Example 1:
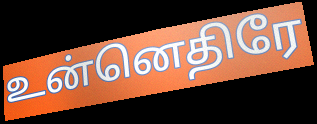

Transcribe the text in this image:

உன்னெதிரே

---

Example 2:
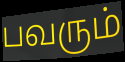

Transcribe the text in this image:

பவரும்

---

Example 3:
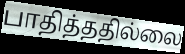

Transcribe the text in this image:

பாதித்ததில்லை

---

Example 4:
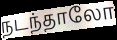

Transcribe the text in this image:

நடந்தாலோ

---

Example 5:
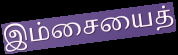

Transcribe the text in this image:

இம்சையைத்